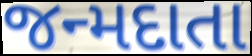
જન્મદાતા